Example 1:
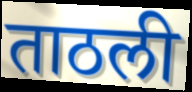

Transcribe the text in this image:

ताठली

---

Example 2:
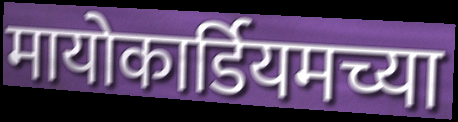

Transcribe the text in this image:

मायोकार्डियमच्या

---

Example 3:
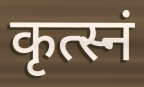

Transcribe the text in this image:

कृत्स्नं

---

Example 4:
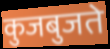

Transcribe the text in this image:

कुजबुजते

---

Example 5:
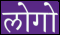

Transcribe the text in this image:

लोगो